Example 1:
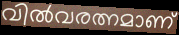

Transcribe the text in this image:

വിൽവരത്നമാണ്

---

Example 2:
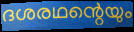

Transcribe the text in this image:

ദശരഥന്റെയും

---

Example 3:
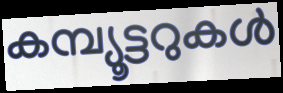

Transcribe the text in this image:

കമ്പ്യൂട്ടറുകൾ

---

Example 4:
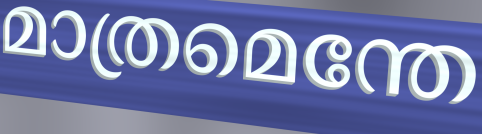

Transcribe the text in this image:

മാത്രമെന്തേ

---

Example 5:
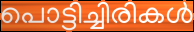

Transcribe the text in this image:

പൊട്ടിച്ചിരികൾ